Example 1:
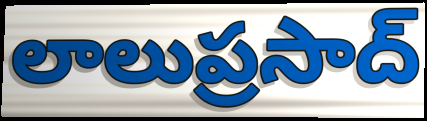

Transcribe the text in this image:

లాలుప్రసాద్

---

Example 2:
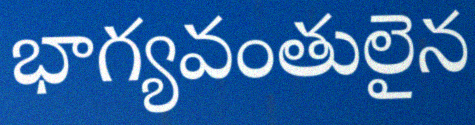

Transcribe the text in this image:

భాగ్యవంతులైన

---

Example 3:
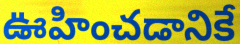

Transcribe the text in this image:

ఊహించడానికే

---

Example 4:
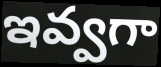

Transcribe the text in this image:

ఇవ్వగా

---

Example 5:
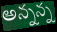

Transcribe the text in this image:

అన్నన్న